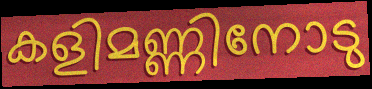
കളിമണ്ണിനോടു